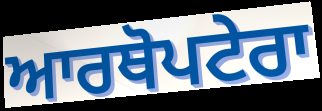
ਆਰਥੋਪਟੇਰਾ